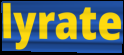
lyrate